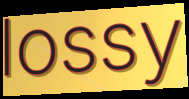
lossy